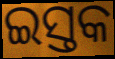
ଇସ୍ତକ